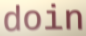
doin